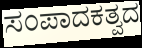
ಸಂಪಾದಕತ್ವದ